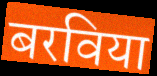
बरविया